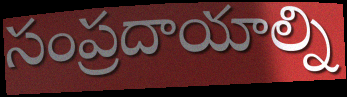
సంప్రదాయాల్ని